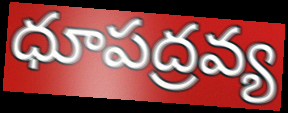
ధూపద్రవ్య